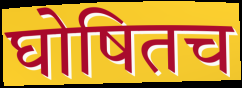
घोषितच